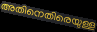
അതിനെതിരെയുള്ള